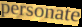
personate